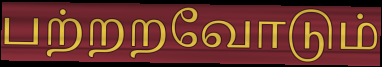
பற்றறவோடும்